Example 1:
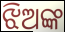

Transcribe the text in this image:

ଝିଅଙ୍କ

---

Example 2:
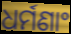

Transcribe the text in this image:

ଧର୍ମଣାଂ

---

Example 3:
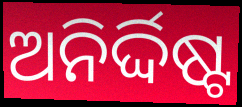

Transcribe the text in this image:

ଅନିର୍ଦ୍ଦିଷ୍ଟ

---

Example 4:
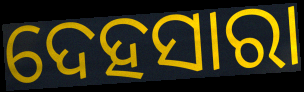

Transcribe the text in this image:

ଦେହସାରା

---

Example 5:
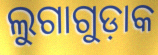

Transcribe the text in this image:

ଲୁଗାଗୁଡ଼ାକ